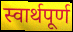
स्वार्थपूर्ण